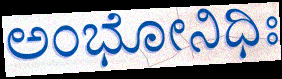
ಅಂಭೋನಿಧಿಃ